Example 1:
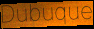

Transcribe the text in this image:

Dubuque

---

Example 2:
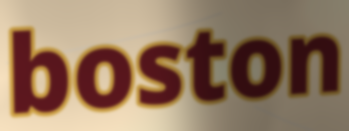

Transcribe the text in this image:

boston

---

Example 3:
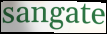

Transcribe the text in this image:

sangate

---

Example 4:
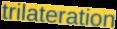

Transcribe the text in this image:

trilateration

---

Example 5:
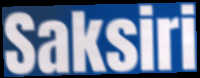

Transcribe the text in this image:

Saksiri